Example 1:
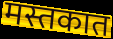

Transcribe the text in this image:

मस्तकात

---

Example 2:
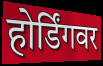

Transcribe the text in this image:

होर्डिंगवर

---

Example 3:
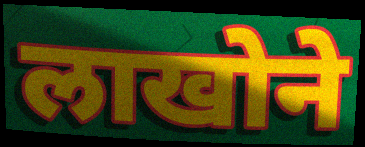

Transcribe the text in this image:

लाखोने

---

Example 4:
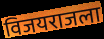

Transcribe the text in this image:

विजयराजला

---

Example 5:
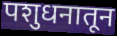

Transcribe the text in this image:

पशुधनातून